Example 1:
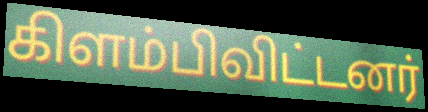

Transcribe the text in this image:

கிளம்பிவிட்டனர்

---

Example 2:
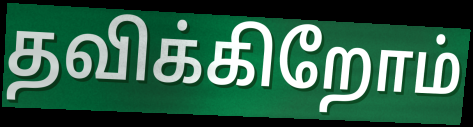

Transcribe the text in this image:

தவிக்கிறோம்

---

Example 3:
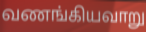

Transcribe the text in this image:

வணங்கியவாறு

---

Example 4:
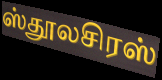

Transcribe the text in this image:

ஸ்தூலசிரஸ்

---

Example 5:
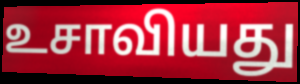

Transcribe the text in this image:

உசாவியது